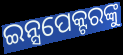
ଇନ୍ସପେକ୍ଟରଙ୍କୁ